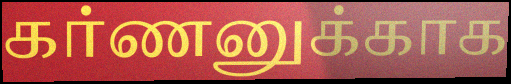
கர்ணனுக்காக